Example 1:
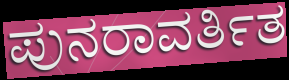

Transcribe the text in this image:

ಪುನರಾವರ್ತಿತ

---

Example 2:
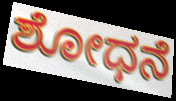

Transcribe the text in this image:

ಶೋಧನೆ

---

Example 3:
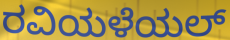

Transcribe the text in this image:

ರವಿಯಳೆಯಲ್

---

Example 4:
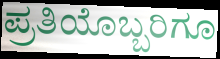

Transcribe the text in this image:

ಪ್ರತಿಯೊಬ್ಬರಿಗೂ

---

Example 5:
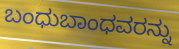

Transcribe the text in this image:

ಬಂಧುಬಾಂಧವರನ್ನು